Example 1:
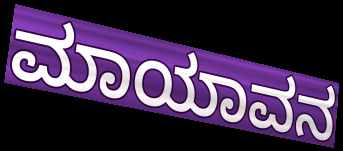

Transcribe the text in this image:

ಮಾಯಾವನ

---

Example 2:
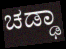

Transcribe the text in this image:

ಚಡ್ಢಾ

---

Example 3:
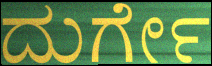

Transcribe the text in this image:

ದುರ್ಗೇ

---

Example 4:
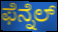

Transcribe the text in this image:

ಫೆನ್ನೆಲ್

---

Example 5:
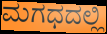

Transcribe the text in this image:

ಮಗಧದಲ್ಲಿ